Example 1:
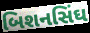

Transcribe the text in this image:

બિશનસિંઘ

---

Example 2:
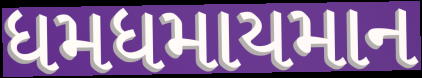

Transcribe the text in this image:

ધમધમાયમાન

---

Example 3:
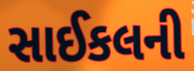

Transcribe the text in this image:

સાઈકલની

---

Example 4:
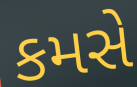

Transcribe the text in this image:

કમસે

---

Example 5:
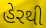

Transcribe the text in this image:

હેરથી